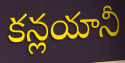
కన్లయానీ